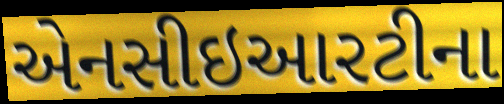
એનસીઇઆરટીના